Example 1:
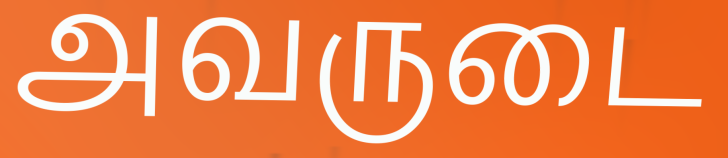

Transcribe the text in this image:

அவருடை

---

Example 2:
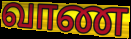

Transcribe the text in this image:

வாண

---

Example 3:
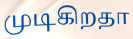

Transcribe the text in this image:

முடிகிறதா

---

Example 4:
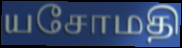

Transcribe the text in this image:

யசோமதி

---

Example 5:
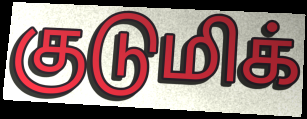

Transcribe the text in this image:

குடுமிக்